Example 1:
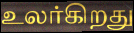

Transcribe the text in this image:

உலர்கிறது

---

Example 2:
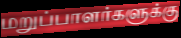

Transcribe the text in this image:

மறுப்பாளர்களுக்கு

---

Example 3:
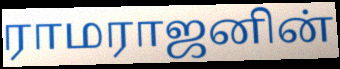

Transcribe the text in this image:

ராமராஜனின்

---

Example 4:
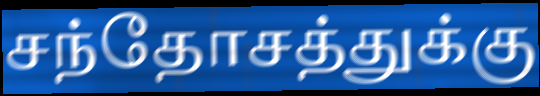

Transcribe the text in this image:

சந்தோசத்துக்கு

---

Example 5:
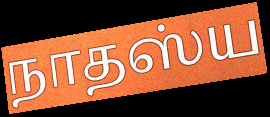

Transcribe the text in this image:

நாதஸ்ய